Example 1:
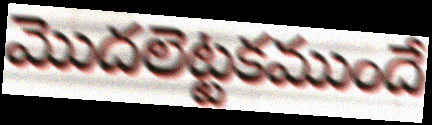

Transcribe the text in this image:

మొదలెట్టకముందే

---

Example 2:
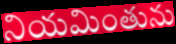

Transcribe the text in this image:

నియమింతును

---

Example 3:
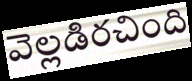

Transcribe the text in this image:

వెల్లడిరచింది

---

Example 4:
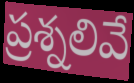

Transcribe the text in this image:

ప్రశ్నలివే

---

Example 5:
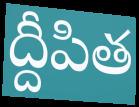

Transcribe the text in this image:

ద్దీపిత